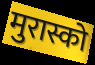
मुरास्को